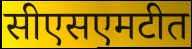
सीएसएमटीत